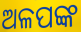
ଅଳପଙ୍କ